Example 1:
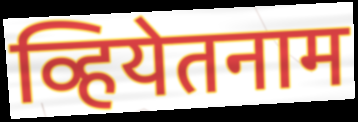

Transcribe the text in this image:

व्हियेतनाम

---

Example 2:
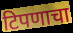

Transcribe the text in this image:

टिपणाचा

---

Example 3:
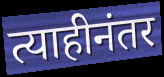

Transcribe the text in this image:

त्याहीनंतर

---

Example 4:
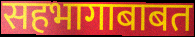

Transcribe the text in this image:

सहभागाबाबत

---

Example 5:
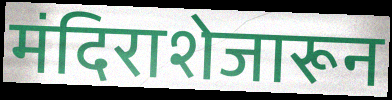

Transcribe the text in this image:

मंदिराशेजारून